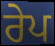
ਰੇਪ